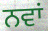
ਨਵਾਂ